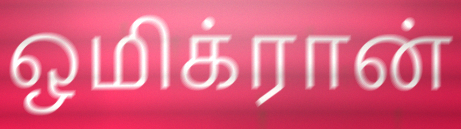
ஒமிக்ரான்